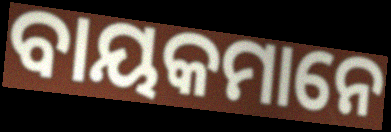
ବାୟକମାନେ